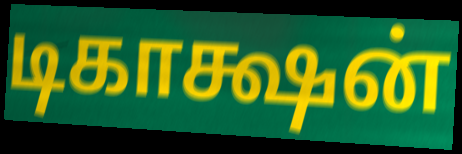
டிகாக்ஷன்